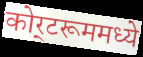
कोर्टरूममध्ये